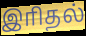
இரிதல்